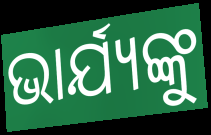
ଭାର୍ଯ୍ୟଙ୍କୁ